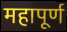
महापूर्ण